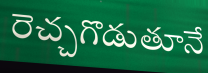
రెచ్చగొడుతూనే